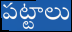
పట్టాలు